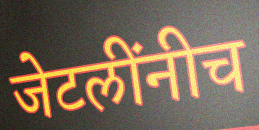
जेटलींनीच